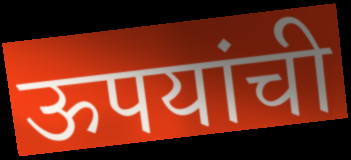
ऊपयांची